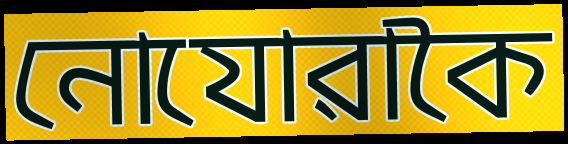
নোযোৱাকৈ